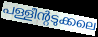
പള്ളീന്റടുക്കലെ